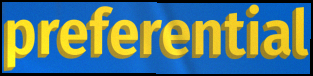
preferential